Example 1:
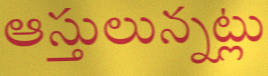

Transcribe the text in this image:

ఆస్తులున్నట్లు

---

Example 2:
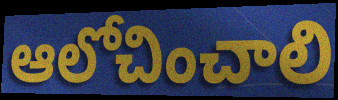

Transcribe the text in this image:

ఆలోచించాలి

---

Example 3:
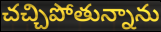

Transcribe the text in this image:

చచ్చిపోతున్నాను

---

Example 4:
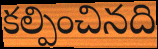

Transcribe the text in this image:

కల్పించినది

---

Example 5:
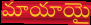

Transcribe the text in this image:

మాయాయై